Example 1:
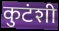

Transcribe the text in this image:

कुटंशी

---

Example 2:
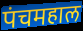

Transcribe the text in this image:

पंचमहाल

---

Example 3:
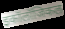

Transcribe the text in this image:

इकॉलॉजिकल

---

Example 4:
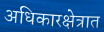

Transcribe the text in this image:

अधिकारक्षेत्रात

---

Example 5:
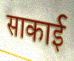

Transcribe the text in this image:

साकाई